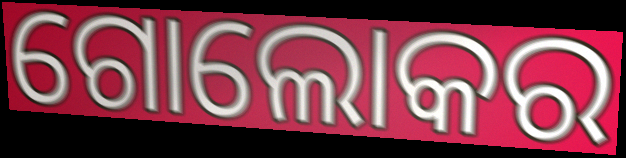
ଗୋଲୋକର